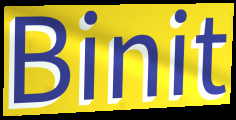
Binit